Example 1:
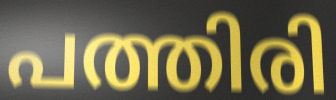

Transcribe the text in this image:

പത്തിരി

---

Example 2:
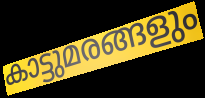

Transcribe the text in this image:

കാട്ടുമരങ്ങളും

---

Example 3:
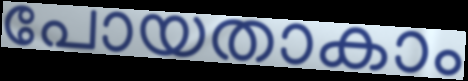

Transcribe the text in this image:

പോയതാകാം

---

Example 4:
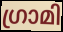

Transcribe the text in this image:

ഗ്രാമി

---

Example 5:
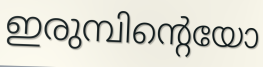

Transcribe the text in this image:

ഇരുമ്പിന്റെയോ